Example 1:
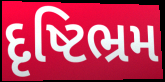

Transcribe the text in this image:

દૃષ્ટિભ્રમ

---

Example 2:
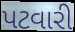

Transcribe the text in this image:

પટવારી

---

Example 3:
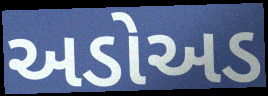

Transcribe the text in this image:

અડોઅડ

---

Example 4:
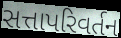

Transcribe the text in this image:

સત્તાપરિવર્તન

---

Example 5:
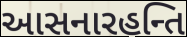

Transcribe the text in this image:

આસનારહન્તિ